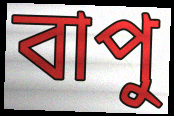
বাপু